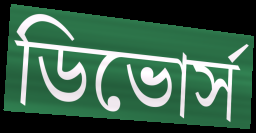
ডিভোর্স